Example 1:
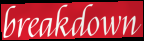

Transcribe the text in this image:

breakdown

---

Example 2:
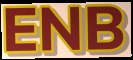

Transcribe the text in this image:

ENB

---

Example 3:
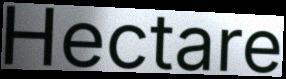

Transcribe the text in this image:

Hectare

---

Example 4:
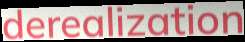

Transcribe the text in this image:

derealization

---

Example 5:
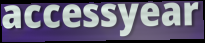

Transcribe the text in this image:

accessyear